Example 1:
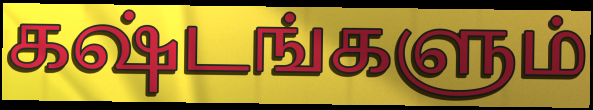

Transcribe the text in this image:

கஷ்டங்களும்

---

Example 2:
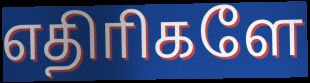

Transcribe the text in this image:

எதிரிகளே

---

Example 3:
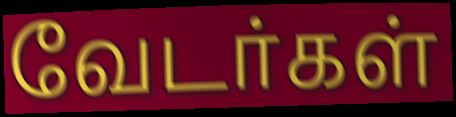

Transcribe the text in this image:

வேடர்கள்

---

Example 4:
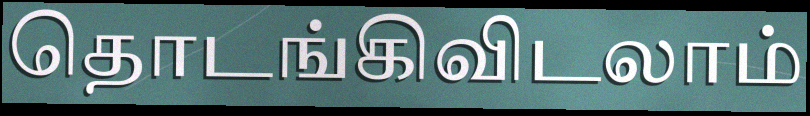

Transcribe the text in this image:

தொடங்கிவிடலாம்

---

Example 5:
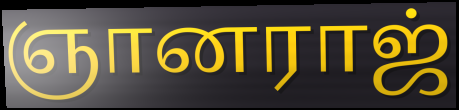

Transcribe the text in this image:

ஞானராஜ்